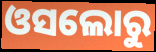
ଓସଲୋରୁ